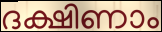
ദക്ഷിണാം